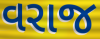
વરાજ